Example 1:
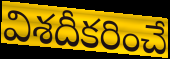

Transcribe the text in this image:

విశదీకరించే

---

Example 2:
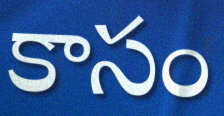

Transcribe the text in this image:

కాసం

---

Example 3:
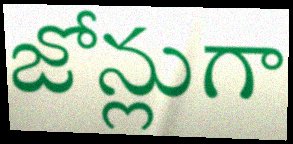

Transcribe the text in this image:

జోన్లుగా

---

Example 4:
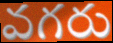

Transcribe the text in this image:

వగరు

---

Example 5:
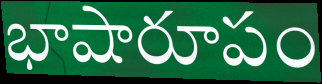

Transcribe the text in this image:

భాషారూపం